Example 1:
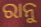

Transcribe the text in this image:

ରାନୁ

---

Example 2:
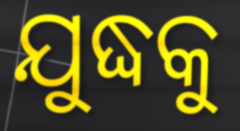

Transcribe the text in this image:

ଯୁଦ୍ଧକୁ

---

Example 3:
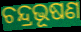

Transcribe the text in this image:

ଚନ୍ଦ୍ରଭୂଷଣ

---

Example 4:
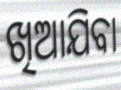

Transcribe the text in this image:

ଖିଆଯିବା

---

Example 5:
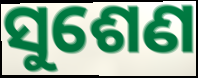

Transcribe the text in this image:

ସୁଶେଣ